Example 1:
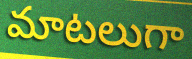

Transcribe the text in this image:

మాటలుగా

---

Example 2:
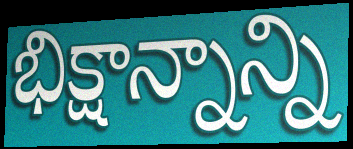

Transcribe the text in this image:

భిక్షాన్నాన్ని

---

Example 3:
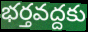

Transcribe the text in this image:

భర్తవద్దకు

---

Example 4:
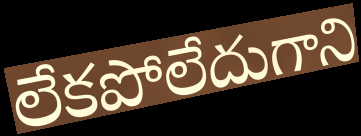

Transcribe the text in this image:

లేకపోలేదుగాని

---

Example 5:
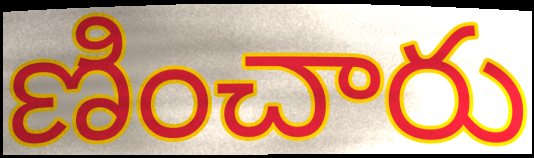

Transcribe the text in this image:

ణించారు